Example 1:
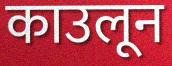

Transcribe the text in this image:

काउलून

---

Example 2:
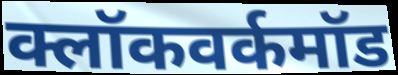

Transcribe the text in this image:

क्लॉकवर्कमॉड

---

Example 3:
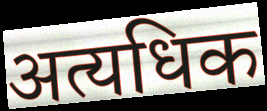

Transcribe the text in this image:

अत्‍यधिक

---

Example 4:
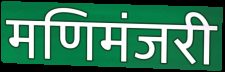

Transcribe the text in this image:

मणिमंजरी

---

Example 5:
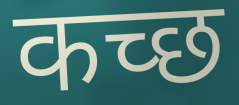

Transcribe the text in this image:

कच्‍छ